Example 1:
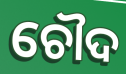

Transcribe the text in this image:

ଚୌଦ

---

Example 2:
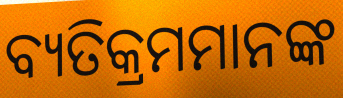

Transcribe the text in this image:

ବ୍ୟତିକ୍ରମମାନଙ୍କ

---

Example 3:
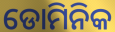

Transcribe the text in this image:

ଡୋମିନିକ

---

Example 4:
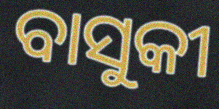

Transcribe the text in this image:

ବାସୁକୀ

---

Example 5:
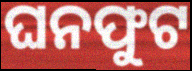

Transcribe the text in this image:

ଘନଫୁଟ